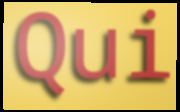
Qui